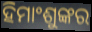
ହିମାଂଶୁଙ୍କର